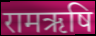
रामऋषि